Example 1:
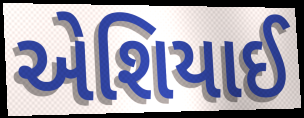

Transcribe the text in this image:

એશિયાઈ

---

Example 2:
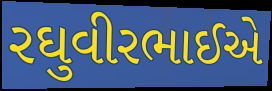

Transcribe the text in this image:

રઘુવીરભાઈએ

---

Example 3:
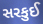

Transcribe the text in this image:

સરકુઈ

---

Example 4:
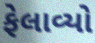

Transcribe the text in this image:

ફેલાવ્યો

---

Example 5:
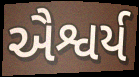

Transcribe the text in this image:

ઐશ્વર્ય